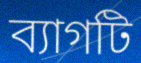
ব্যাগটি